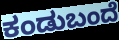
ಕಂಡುಬಂದೆ